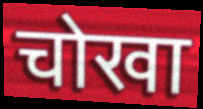
चोखा